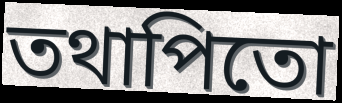
তথাপিতো